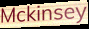
Mckinsey